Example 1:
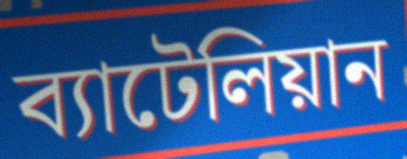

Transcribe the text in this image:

ব্যাটেলিয়ান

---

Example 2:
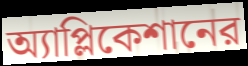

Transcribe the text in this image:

অ্যাপ্লিকেশানের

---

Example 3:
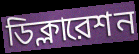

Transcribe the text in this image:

ডিক্লারেশন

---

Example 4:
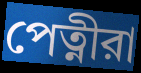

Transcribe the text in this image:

পেত্নীরা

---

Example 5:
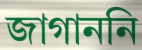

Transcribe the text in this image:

জাগাননি